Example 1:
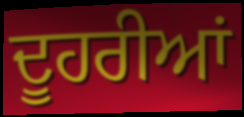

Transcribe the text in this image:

ਦੂਹਰੀਆਂ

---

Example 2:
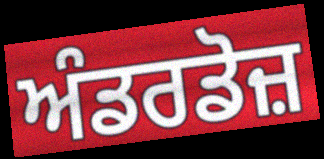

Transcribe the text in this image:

ਅੰਡਰਡੋਜ਼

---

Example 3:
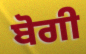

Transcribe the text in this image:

ਬੋਗੀ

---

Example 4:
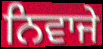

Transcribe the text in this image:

ਨਿਵਾਜੇ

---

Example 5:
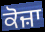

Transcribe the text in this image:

ਕੋਜ਼ਾ